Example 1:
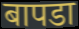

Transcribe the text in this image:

बापडा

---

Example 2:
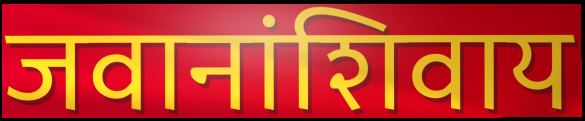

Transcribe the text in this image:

जवानांशिवाय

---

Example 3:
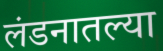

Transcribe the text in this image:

लंडनातल्या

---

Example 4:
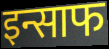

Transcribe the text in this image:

इन्साफ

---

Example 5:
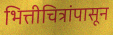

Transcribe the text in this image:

भित्तीचित्रांपासून